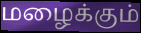
மழைக்கும்